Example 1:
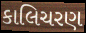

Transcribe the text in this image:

કાલિચરણ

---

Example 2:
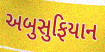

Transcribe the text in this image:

અબુસુફિયાન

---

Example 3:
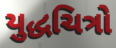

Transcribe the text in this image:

યુદ્ધચિત્રો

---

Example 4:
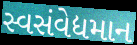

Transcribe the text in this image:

સ્વસંવેદ્યમાન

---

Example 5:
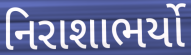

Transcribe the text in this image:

નિરાશાભર્યો